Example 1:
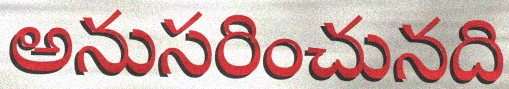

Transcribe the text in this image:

అనుసరించునది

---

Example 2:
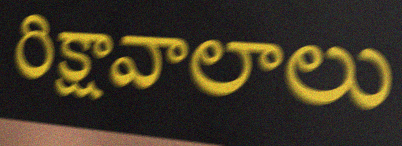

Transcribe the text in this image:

రిక్షావాలాలు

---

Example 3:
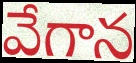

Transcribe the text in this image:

వేగాన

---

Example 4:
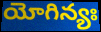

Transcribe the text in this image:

యోగిన్యః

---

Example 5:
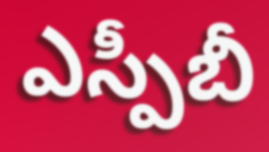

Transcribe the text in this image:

ఎస్పీబీ